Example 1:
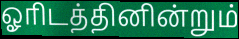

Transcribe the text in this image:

ஓரிடத்தினின்றும்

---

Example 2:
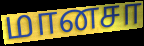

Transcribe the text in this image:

மானசா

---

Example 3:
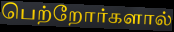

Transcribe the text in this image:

பெற்றோர்களால்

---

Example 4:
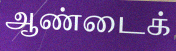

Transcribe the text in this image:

ஆண்டைக்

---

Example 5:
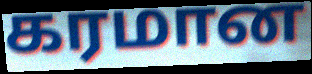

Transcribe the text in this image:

கரமான